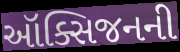
ઑક્સિજનની